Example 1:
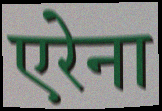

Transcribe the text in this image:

एरेना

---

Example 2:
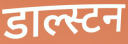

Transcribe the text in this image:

डाल्स्टन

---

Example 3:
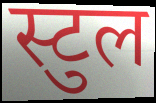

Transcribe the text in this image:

स्टुल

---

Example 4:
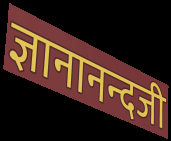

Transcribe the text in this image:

ज्ञानानन्दजी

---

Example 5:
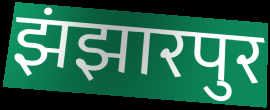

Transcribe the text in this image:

झंझारपुर